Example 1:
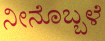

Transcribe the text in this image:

ನೀನೊಬ್ಬಳೆ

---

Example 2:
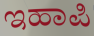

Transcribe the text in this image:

ಇಹಾಪಿ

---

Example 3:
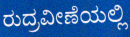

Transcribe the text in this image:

ರುದ್ರವೀಣೆಯಲ್ಲಿ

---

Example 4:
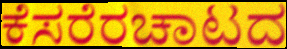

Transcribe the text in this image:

ಕೆಸರೆರಚಾಟದ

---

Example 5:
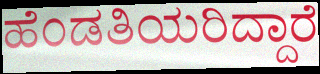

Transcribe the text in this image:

ಹೆಂಡತಿಯರಿದ್ದಾರೆ